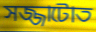
সজ্জাটোত